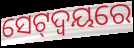
ସେଟ୍‌ଦ୍ଵୟରେ